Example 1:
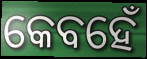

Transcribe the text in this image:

କେବହେଁ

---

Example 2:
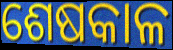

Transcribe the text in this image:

ଶେଷକାଳ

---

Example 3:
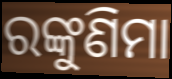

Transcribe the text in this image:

ରଙ୍କୁଣିମା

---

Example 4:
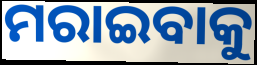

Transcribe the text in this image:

ମରାଇବାକୁ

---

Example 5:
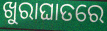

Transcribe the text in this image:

ଖୁରାଘାତରେ